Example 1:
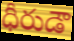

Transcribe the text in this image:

ధీరుడౌ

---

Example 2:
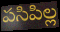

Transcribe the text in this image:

పసిపిల్ల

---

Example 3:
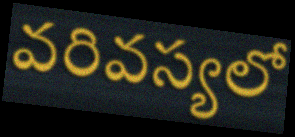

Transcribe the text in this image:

వరివస్యలో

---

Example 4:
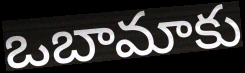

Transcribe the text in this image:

ఒబామాకు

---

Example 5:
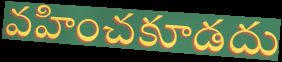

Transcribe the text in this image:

వహించకూడదు